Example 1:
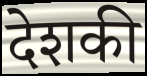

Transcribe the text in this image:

देशकी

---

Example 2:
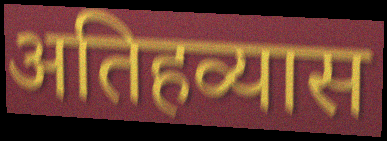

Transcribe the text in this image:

अतिहव्यास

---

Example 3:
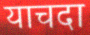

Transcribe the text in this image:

याचदा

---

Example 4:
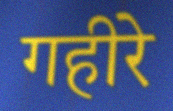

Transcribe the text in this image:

गहीरे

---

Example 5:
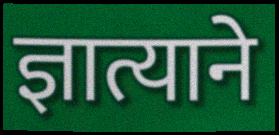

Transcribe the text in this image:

ज्ञात्याने